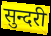
सुन्दरी